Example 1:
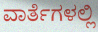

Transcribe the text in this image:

ವಾರ್ತೆಗಳಲ್ಲಿ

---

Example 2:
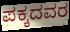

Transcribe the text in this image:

ಪಕ್ಕದವರ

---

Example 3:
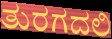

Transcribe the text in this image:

ತುರಗದಲಿ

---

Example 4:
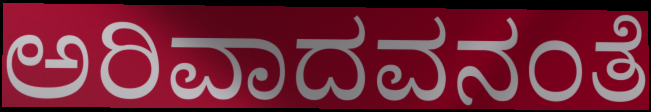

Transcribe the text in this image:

ಅರಿವಾದವನಂತೆ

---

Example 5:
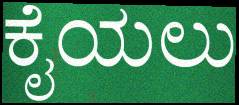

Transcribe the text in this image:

ಕೈಯಲು